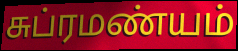
சுப்ரமண்யம்